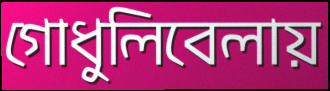
গোধুলিবেলায়